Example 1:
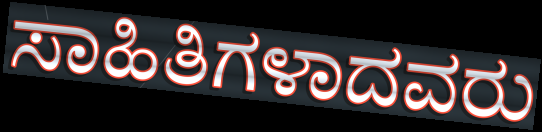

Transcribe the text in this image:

ಸಾಹಿತಿಗಳಾದವರು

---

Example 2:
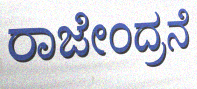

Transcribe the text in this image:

ರಾಜೇಂದ್ರನೆ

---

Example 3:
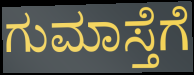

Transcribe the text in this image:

ಗುಮಾಸ್ತೆಗೆ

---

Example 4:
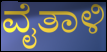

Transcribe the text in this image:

ವೈತಾಳಿ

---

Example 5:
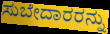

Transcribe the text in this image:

ಸುಬೇದಾರರನ್ನು